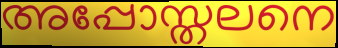
അപ്പോസ്തലനെ